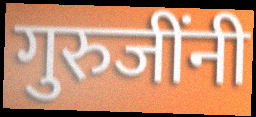
गुरुजींनी